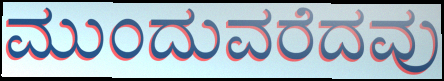
ಮುಂದುವರೆದವು